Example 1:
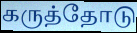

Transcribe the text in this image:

கருத்தோடு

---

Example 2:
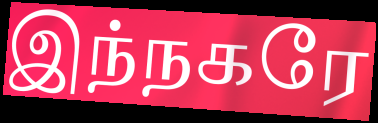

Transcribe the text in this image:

இந்நகரே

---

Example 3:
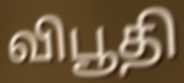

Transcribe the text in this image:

விபூதி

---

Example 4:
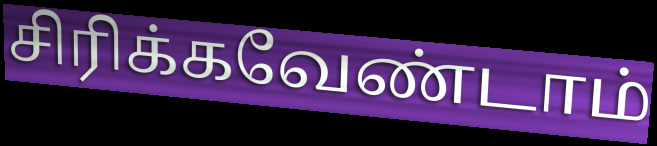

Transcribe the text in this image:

சிரிக்கவேண்டாம்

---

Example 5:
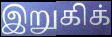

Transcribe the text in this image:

இறுகிக்